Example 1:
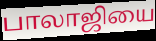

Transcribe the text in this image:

பாலாஜியை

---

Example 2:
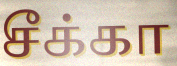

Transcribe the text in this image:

சீக்கா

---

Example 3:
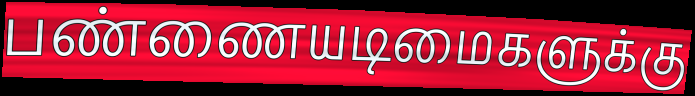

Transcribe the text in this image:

பண்ணையடிமைகளுக்கு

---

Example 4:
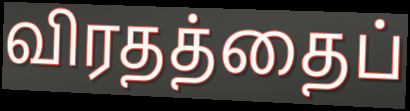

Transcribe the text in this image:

விரதத்தைப்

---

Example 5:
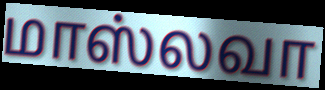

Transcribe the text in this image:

மாஸ்லவா